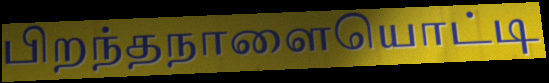
பிறந்தநாளையொட்டி